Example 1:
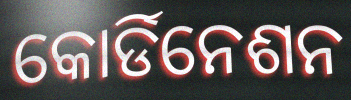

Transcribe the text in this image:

କୋର୍ଡିନେଶନ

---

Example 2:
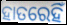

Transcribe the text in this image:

ହାତରେହିଁ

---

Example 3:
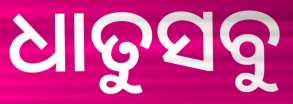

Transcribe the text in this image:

ଧାତୁସବୁ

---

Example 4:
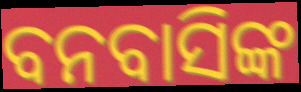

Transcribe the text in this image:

ବନବାସିଙ୍କ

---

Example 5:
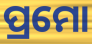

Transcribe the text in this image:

ପ୍ରମୋ